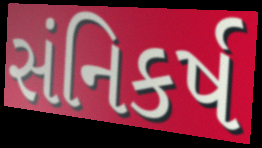
સંનિકર્ષ